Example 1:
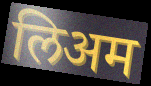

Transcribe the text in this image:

लिअम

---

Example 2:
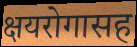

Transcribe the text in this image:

क्षयरोगासह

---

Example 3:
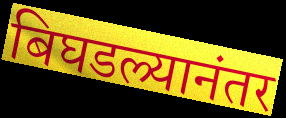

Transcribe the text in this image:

बिघडल्यानंतर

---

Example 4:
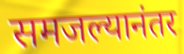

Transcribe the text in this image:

समजल्यानंतर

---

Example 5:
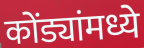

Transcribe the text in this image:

कोंड्यांमध्ये